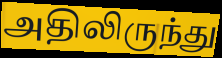
அதிலிருந்து